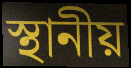
স্থানীয়